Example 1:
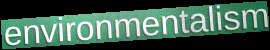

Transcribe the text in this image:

environmentalism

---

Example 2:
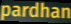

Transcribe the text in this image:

pardhan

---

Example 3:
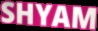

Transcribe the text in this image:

SHYAM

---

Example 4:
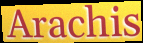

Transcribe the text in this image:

Arachis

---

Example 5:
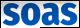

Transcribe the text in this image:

soas